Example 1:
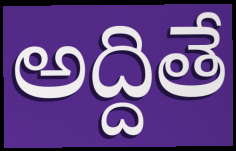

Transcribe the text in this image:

అద్దితే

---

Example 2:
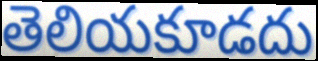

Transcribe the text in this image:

తెలియకూడదు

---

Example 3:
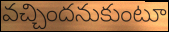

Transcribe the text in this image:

వచ్చిందనుకుంటూ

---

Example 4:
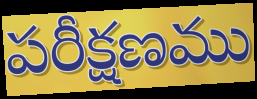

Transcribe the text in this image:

పరీక్షణము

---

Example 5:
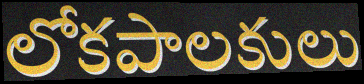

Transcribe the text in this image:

లోకపాలకులు